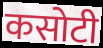
कसोटी